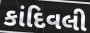
કાંદિવલી